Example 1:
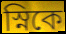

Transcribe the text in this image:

স্নিকে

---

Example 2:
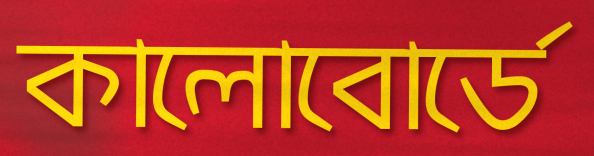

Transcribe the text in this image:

কালোবোর্ডে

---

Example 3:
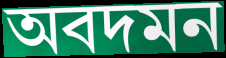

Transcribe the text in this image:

অবদমন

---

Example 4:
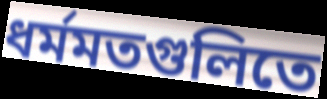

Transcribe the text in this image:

ধর্মমতগুলিতে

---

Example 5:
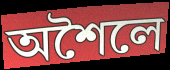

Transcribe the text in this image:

অশৈলে